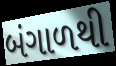
બંગાળથી